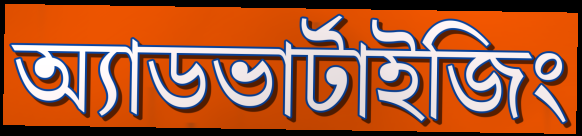
অ্যাডভার্টাইজিং